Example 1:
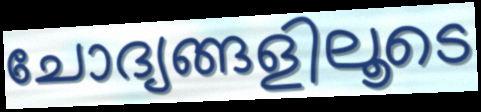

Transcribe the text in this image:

ചോദ്യങ്ങളിലൂടെ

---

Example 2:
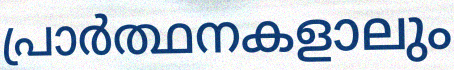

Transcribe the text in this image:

പ്രാർത്ഥനകളാലും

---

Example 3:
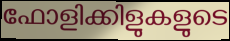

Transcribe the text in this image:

ഫോളിക്കിളുകളുടെ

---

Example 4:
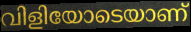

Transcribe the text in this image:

വിളിയോടെയാണ്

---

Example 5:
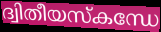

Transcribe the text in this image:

ദ്വിതീയസ്കന്ധേ